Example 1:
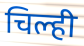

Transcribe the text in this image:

चिल्ही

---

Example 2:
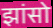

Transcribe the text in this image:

झांसो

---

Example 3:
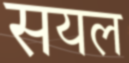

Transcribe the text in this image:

सयल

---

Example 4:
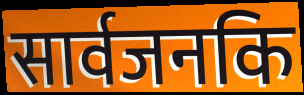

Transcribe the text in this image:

सार्वजनकि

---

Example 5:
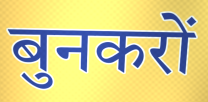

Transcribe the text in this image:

बुनकरों